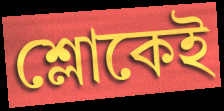
শ্লোকেই